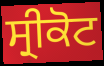
ਸ੍ਰੀਕੋਟ